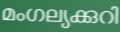
മംഗല്യക്കുറി